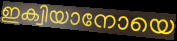
ഇക്വിയാനോയെ